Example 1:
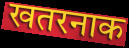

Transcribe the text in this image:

खतरनाक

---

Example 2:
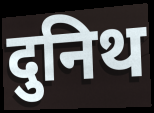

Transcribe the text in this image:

दुनिथ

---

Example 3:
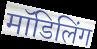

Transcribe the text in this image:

मॉडिलिंग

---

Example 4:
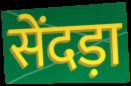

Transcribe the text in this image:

सेंदड़ा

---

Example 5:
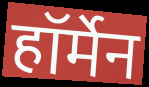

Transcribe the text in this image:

हॉर्मेन